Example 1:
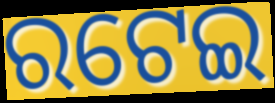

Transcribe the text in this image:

ରଟେଇ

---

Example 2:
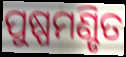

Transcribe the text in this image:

ପୁଷ୍ପମଣ୍ଡିତ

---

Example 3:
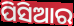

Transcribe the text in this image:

ପିସିଆର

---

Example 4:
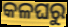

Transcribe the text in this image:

କଳଘରୁ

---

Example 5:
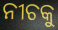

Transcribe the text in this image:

ନୀଚକୁ